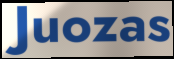
Juozas